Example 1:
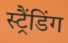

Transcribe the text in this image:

स्ट्रैंडिंग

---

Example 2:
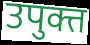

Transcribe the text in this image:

उपुक्त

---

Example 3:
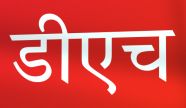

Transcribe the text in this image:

डीएच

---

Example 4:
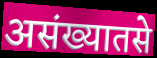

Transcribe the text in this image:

असंख्यातसे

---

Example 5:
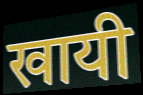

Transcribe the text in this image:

खायी